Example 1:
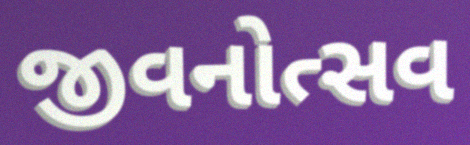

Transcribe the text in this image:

જીવનોત્સવ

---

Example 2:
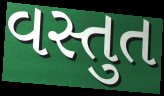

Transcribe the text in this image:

વસ્તુત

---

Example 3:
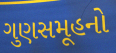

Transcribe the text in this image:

ગુણસમૂહનો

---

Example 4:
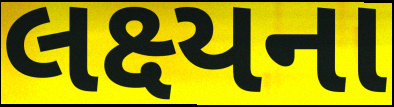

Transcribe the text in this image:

લક્ષ્યના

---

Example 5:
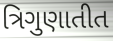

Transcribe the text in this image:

ત્રિગુણાતીત